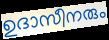
ഉദാസീനരും